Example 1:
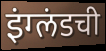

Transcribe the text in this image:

इंग्लंडची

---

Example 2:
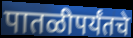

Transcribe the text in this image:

पातळीपर्यंतचे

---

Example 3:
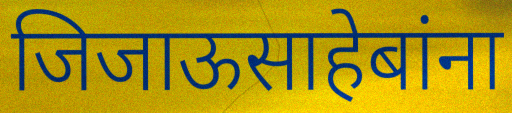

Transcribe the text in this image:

जिजाऊसाहेबांना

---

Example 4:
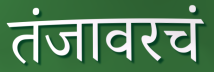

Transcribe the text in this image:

तंजावरचं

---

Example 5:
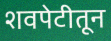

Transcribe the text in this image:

शवपेटीतून